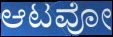
ಆಟವೋ